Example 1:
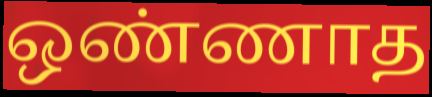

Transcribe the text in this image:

ஒண்ணாத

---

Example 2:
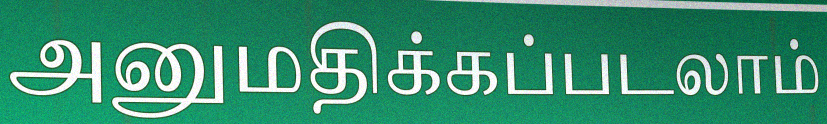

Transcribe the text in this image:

அனுமதிக்கப்படலாம்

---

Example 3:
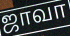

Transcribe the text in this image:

ஜாவா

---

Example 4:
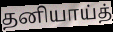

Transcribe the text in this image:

தனியாய்த்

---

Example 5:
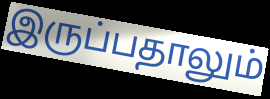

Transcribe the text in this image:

இருப்பதாலும்